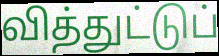
வித்துட்டுப்